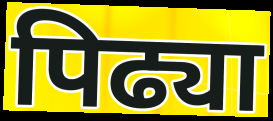
पिढ्या